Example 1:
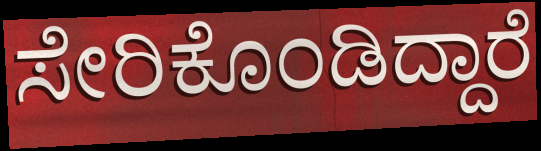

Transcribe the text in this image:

ಸೇರಿಕೊಂಡಿದ್ದಾರೆ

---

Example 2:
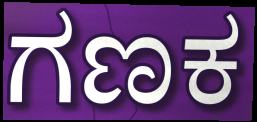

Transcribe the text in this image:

ಗಣಕ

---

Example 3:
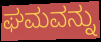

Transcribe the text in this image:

ಘಮವನ್ನು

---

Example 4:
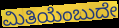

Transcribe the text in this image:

ಮಿತಿಯೆಂಬುದೇ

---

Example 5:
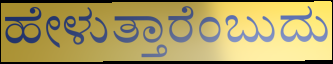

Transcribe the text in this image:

ಹೇಳುತ್ತಾರೆಂಬುದು